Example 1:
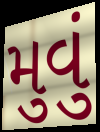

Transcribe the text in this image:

મુવું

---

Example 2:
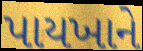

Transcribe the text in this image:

પાયખાને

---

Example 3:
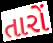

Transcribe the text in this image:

તારોં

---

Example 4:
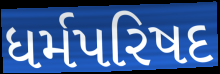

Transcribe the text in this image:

ધર્મપરિષદ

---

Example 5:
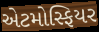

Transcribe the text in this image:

એટમોસ્ફિયર